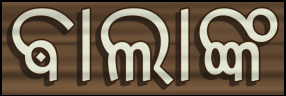
ଵାଲାଙ୍କ